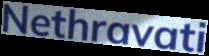
Nethravati